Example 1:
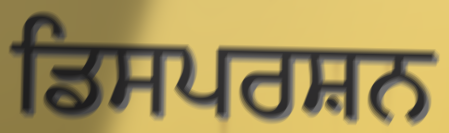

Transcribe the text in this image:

ਡਿਸਪਰਸ਼ਨ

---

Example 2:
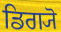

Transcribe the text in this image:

ਡਿਗ੍ਯੋ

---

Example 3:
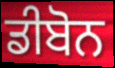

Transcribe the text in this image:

ਡੀਬੋਨ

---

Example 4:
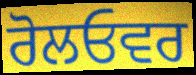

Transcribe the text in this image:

ਰੋਲਓਵਰ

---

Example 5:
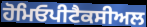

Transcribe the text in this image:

ਹੋਮਿਓਪੀਟੈਕਸੀਅਲ